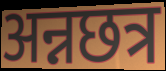
अन्नछत्र